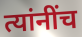
त्यांनींच